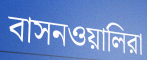
বাসনওয়ালিরা